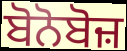
ਬੋਨੋਬੋਜ਼